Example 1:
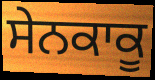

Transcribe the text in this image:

ਸੇਨਕਾਕੂ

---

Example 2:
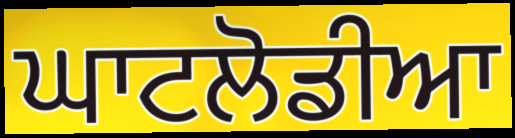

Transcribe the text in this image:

ਘਾਟਲੋਡੀਆ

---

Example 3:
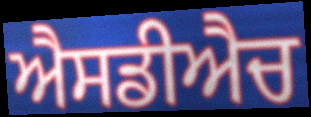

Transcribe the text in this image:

ਐਸਡੀਐਚ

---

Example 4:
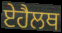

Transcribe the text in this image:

ਏਹੈਲਥ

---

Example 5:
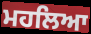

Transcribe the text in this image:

ਮਹਲਿਆ